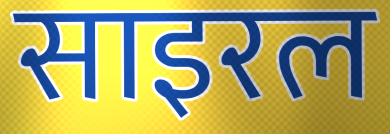
साइरल